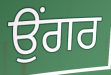
ਉਂਗਰ